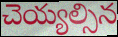
చెయ్యల్సిన